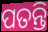
ପତନ୍ତି